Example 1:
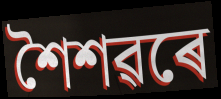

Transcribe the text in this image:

শৈশৱৰে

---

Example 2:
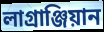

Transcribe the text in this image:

লাগ্ৰাঞ্জিয়ান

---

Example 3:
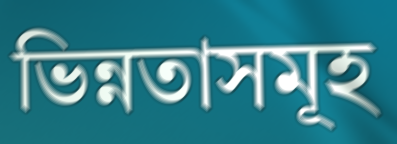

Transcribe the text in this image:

ভিন্নতাসমূহ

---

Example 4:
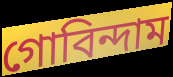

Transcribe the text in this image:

গোবিন্দাম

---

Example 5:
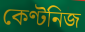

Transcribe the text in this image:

কেণ্টনিজ